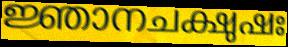
ജ്ഞാനചക്ഷുഷഃ